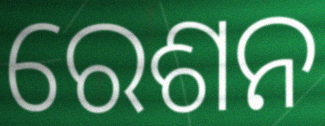
ରେଶନ